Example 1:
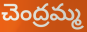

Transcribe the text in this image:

చెంద్రమ్మ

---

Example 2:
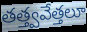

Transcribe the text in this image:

తత్త్వవేత్తలూ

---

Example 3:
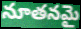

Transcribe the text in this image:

నూతనమై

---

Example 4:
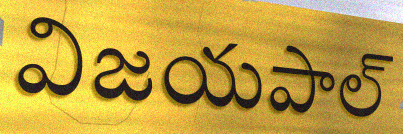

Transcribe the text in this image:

విజయపాల్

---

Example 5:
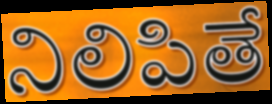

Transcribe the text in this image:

నిలిపితే